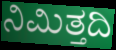
ನಿಮಿತ್ತದಿ